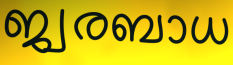
ജ്വരബാധ